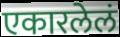
एकारलेलं